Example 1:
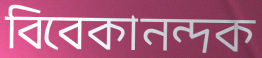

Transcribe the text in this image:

বিবেকানন্দক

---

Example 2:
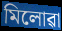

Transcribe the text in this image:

মিলোৱা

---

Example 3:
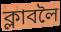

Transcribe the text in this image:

ক্লাবলৈ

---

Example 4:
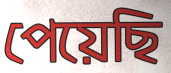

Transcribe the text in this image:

পেয়েছি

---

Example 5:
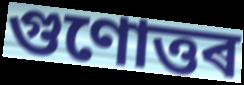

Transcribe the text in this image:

গুণোত্তৰ